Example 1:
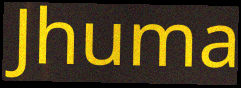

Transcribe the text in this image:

Jhuma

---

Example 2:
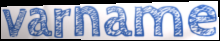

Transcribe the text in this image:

varname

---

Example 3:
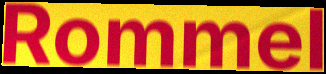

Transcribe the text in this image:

Rommel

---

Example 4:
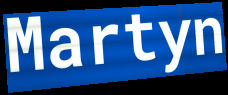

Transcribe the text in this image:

Martyn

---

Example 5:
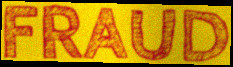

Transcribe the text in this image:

FRAUD